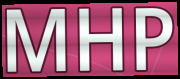
MHP